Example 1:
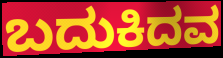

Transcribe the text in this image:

ಬದುಕಿದವ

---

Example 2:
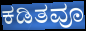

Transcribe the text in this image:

ಕಡಿತವೂ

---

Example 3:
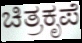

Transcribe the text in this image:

ಚಿತ್ರಕೃಪೆ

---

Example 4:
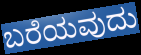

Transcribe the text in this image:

ಬರೆಯವುದು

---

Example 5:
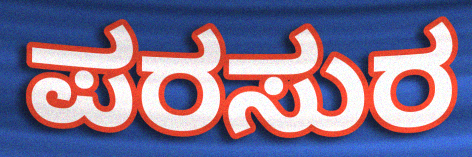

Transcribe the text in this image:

ಪರಸುರ